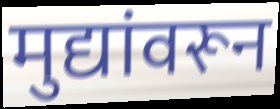
मुद्यांवरून